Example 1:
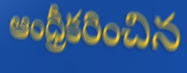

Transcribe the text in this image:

ఆంధ్రీకరించిన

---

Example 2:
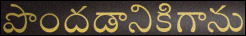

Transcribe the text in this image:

పొందడానికిగాను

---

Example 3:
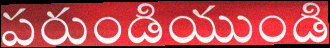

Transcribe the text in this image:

పరుండియుండి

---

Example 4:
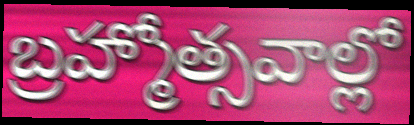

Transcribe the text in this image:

బ్రహ్మోత్సవాల్లో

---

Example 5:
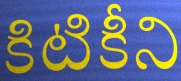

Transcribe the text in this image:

కిటికీని